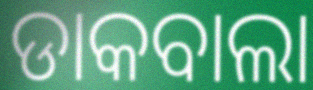
ଡାକବାଲା